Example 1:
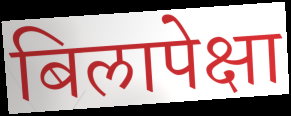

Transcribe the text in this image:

बिलापेक्षा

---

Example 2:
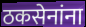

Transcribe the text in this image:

ठकसेनांना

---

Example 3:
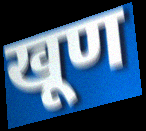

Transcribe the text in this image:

खूण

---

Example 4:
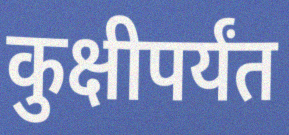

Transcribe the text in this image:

कुक्षीपर्यंत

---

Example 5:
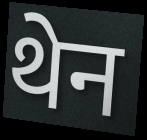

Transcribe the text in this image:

थेन